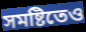
সমষ্টিতেও